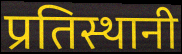
प्रतिस्थानी